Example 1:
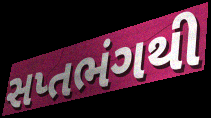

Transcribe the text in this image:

સપ્તભંગથી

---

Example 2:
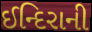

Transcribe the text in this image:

ઈન્દિરાની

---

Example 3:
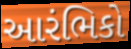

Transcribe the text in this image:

આરંભિકો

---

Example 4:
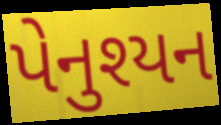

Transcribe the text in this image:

પેનુશ્યન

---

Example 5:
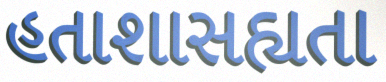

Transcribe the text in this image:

હતાશાસહ્યતા